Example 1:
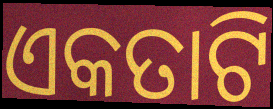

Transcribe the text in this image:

ଏକତାଟି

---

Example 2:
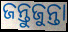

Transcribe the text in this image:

ଜନ୍ତୁଜୁନ୍ତା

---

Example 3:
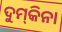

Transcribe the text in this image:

ଦୁମ୍‌କିନା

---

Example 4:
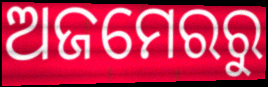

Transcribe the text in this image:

ଅଜମେରରୁ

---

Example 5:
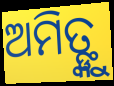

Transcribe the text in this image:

ଅମିତ୍ଙ୍କୁ